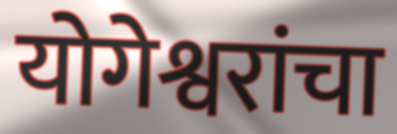
योगेश्वरांचा